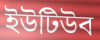
ইউটিউব